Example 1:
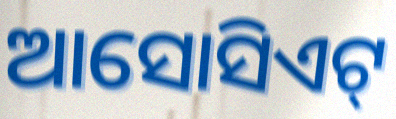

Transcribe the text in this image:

ଆସୋସିଏଟ୍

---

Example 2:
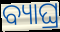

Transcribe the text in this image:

ବ୍ୟାଘ୍ର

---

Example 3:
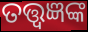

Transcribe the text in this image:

ତତ୍ତ୍ଵଜ୍ଞଙ୍କ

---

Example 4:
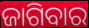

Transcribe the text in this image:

ଜାଗିବାର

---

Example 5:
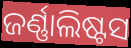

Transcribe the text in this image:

ଜର୍ଣ୍ଣାଲିଷ୍ଟସ